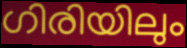
ഗിരിയിലും